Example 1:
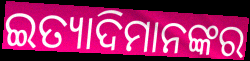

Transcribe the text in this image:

ଇତ୍ୟାଦିମାନଙ୍କର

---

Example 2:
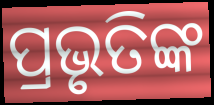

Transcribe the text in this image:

ପ୍ରଭୃତିଙ୍କ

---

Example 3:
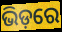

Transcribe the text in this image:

ଭିଡ଼ରେ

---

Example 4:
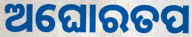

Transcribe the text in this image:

ଅଘୋରତପ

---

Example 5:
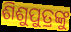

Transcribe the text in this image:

ଶିଶୁପୁତ୍ରଙ୍କୁ